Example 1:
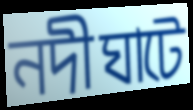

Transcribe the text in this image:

নদীঘাটে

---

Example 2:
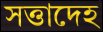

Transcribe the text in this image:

সত্তাদেহ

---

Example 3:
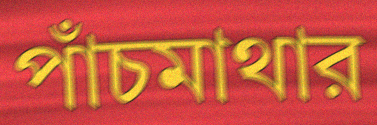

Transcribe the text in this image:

পাঁচমাথার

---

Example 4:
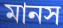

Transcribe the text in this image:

মানস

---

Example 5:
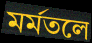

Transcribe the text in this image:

মর্মতলে